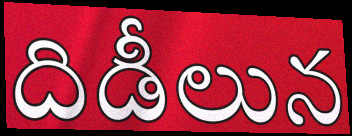
దిడీలున